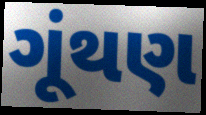
ગૂંથણ